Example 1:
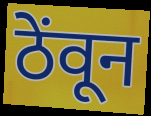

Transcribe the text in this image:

ठेंवून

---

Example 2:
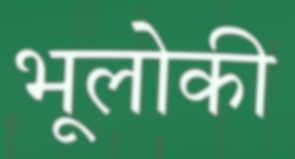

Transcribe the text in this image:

भूलोकी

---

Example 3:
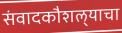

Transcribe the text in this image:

संवादकौशल्याचा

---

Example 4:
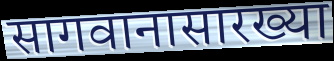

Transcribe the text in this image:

सागवानासारख्या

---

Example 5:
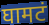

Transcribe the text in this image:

घामटं